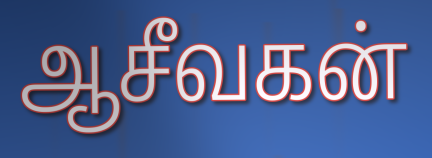
ஆசீவகன்